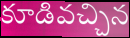
కూడివచ్చిన